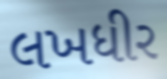
લખધીર